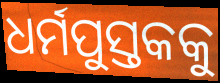
ଧର୍ମପୁସ୍ତକକୁ